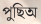
পুছিঅ